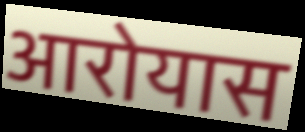
आरोयास